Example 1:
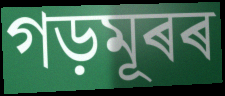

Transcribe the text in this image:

গড়মূৰৰ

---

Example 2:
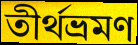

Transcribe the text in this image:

তীৰ্থভ্ৰমণ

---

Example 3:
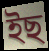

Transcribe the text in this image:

ইছ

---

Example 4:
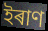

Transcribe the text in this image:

ইৰাণ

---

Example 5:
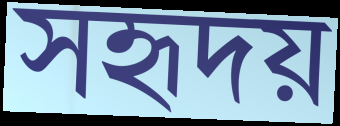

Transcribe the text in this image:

সহৃদয়